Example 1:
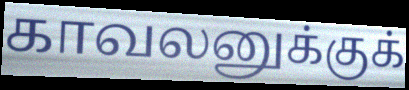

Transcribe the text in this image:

காவலனுக்குக்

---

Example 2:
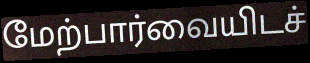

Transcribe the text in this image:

மேற்பார்வையிடச்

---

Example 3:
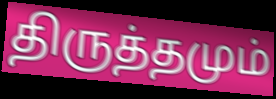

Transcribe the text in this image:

திருத்தமும்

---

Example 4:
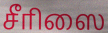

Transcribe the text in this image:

சீரிஸை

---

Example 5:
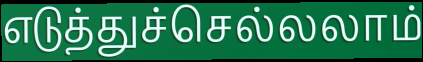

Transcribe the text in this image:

எடுத்துச்செல்லலாம்